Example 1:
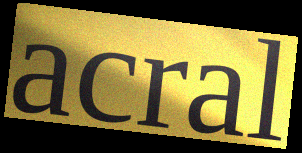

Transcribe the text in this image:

acral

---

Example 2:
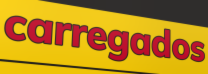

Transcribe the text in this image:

carregados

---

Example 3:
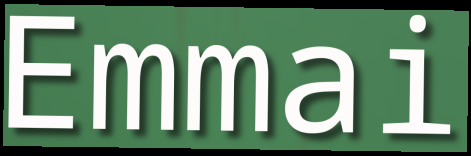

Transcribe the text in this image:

Emmai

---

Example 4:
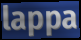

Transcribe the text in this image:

lappa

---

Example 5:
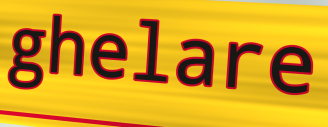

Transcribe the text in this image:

ghelare